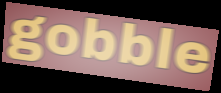
gobble